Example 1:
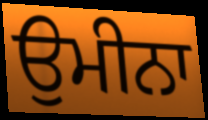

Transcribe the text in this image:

ਉਮੀਨਾ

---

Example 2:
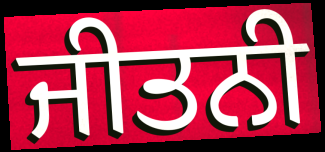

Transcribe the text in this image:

ਜੀਤਨੀ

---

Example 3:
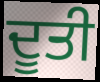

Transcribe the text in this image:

ਦੂਤੀ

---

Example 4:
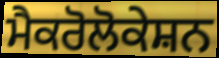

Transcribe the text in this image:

ਮੈਕਰੋਲੋਕੇਸ਼ਨ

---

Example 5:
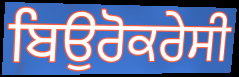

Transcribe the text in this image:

ਬਿਉਰੋਕਰੇਸੀ